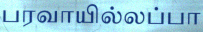
பரவாயில்லப்பா